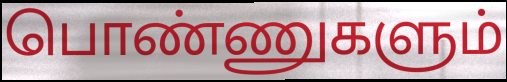
பொண்ணுகளும்